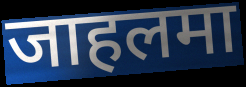
जाहलमा